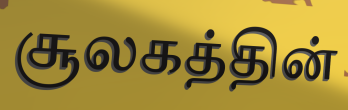
சூலகத்தின்